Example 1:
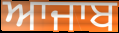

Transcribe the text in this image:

ਆਜਾਬ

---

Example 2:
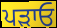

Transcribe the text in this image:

ਪੜਾਓ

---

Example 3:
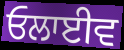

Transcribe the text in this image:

ਓਲਾਈਵ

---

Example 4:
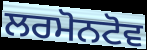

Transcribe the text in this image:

ਲਰਮੋਨਟੋਵ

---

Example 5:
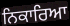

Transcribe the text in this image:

ਨਿਕਾਰਿਆ